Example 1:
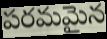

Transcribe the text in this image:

పరమమైన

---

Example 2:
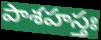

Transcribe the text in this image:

పాశహస్తః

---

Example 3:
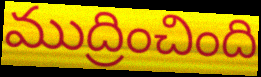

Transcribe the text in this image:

ముద్రించింది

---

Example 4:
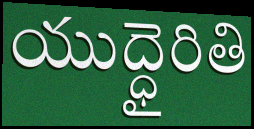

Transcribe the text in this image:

యుద్ధైరితి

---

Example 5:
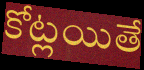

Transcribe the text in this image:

కోట్లయితే